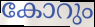
കോറും